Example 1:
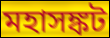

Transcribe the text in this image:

মহাসঙ্কট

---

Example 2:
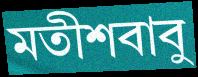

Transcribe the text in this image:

মতীশবাবু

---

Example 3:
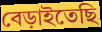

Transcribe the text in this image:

বেড়াইতেছি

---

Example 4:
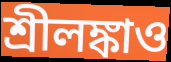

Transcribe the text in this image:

শ্রীলঙ্কাও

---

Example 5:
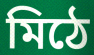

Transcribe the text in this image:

মিঠে